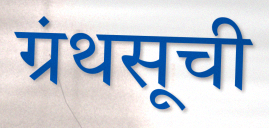
ग्रंथसूची